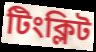
টিংক্লিট